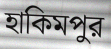
হাকিমপুর